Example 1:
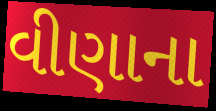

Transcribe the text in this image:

વીણાના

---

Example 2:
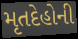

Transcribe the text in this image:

મૃતદેહોની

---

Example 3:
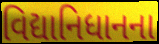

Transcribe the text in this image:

વિદ્યાનિધાનના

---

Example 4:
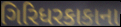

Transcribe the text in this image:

ગિરિધરકાકાના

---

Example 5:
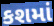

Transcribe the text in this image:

કશમાં